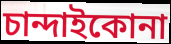
চান্দাইকোনা